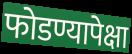
फोडण्यापेक्षा